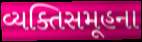
વ્યક્તિસમૂહના